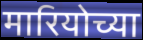
मारियोच्या